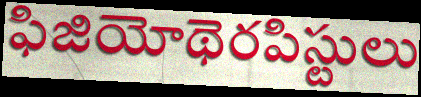
ఫిజియోథెరపిస్టులు